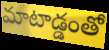
మాటాడ్డంతో